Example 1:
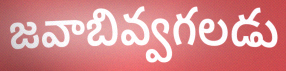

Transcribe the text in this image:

జవాబివ్వగలడు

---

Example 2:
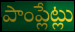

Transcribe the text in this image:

పాంప్లేట్లు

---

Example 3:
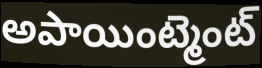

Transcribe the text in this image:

అపాయింట్మెంట్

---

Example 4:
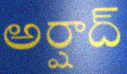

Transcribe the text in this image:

అర్షాద్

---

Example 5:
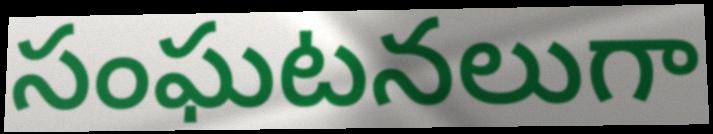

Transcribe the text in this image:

సంఘటనలుగా